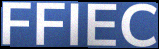
FFIEC